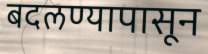
बदलण्यापासून